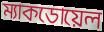
ম্যাকডোয়েল